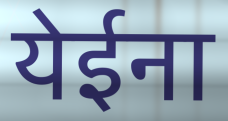
येईना